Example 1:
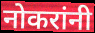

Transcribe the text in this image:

नोकरांनी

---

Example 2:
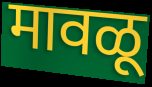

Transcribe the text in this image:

मावळू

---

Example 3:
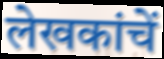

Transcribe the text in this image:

लेखकांचें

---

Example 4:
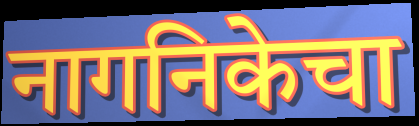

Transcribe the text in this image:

नागनिकेचा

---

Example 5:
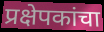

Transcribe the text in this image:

प्रक्षेपकांचा